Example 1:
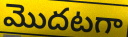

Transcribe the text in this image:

మొదటగా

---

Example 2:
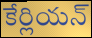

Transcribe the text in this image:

కేర్లియన్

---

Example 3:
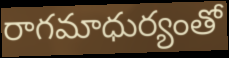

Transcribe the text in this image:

రాగమాధుర్యంతో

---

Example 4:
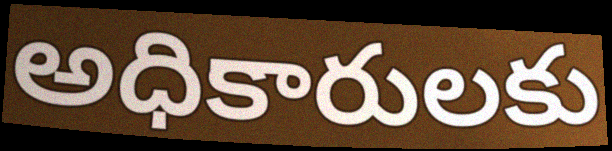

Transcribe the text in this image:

అధికారులకు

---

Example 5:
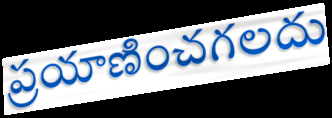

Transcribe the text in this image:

ప్రయాణించగలదు